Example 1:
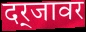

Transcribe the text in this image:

दर्जावर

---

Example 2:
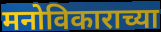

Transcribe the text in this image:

मनोविकाराच्या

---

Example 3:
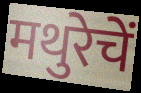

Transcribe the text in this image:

मथुरेचें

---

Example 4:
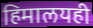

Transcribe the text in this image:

हिमालयही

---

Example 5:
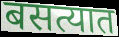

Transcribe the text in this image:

बसत्यात